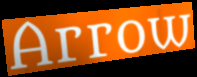
Arrow